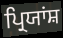
ਪ੍ਰਿਯਾਂਸ਼